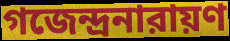
গজেন্দ্রনারায়ণ